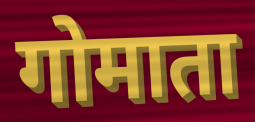
गोमाता